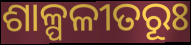
ଶାଳ୍ପଳୀତରୂଃ